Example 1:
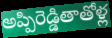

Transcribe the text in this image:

అప్పిరెడ్డితాతోళ్ల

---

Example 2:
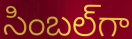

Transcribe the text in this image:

సింబల్‌గా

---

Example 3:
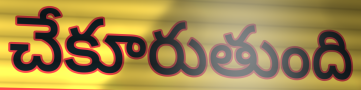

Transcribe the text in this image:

చేకూరుతుంది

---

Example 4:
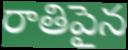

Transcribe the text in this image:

రాతిపైన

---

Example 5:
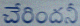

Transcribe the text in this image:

చేరిందనీ